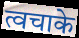
त्वचाके